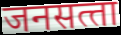
जनसत्‍ता